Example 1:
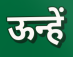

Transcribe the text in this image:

ऊन्हें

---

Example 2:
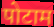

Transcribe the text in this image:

पोटाम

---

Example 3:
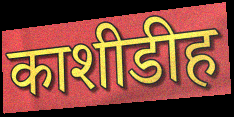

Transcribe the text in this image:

काशीडीह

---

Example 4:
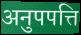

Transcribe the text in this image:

अनुपपत्ति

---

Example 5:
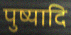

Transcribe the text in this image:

पुष्यादि